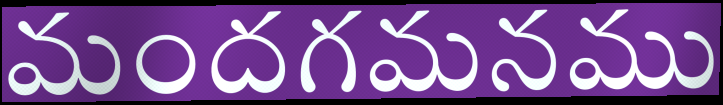
మందగమనము